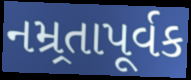
નમ્ર્રતાપૂર્વક